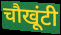
चौखूंटी